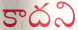
కాదని